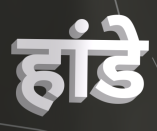
हांडे